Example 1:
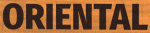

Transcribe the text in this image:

ORIENTAL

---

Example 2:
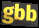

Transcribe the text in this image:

gbb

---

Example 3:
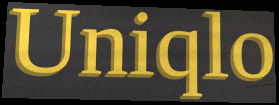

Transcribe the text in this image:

Uniqlo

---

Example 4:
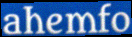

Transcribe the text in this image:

ahemfo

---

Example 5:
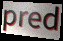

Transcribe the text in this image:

pred